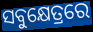
ସବୁକ୍ଷେତ୍ରରେ